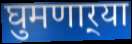
घुमणार्या